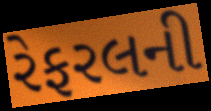
રેફરલની